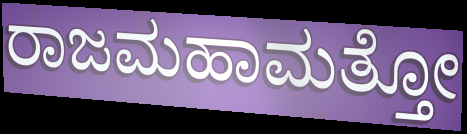
ರಾಜಮಹಾಮತ್ತೋ